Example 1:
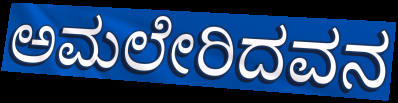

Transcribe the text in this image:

ಅಮಲೇರಿದವನ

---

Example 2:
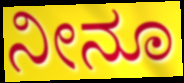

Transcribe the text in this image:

ನೀನೂ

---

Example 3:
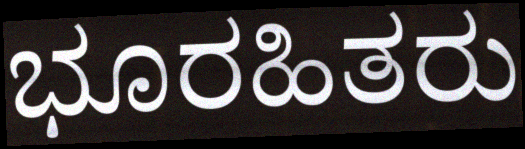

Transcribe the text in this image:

ಭೂರಹಿತರು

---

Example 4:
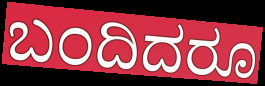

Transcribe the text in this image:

ಬಂದಿದರೂ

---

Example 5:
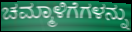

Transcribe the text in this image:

ಚಮ್ಮಾಳಿಗೆಗಳನ್ನು